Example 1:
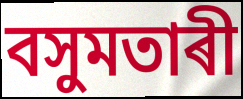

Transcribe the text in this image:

বসুমতাৰী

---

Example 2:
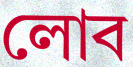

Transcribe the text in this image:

লোব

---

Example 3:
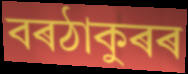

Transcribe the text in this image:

বৰঠাকুৰৰ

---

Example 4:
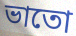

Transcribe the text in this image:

ভাতো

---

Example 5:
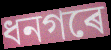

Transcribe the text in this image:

ধনগৰে